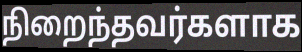
நிறைந்தவர்களாக